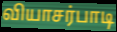
வியாசர்பாடி